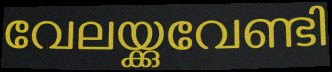
വേലയ്ക്കുവേണ്ടി